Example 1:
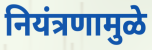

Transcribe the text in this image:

नियंत्रणामुळे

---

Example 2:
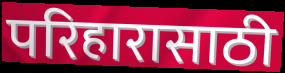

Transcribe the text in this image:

परिहारासाठी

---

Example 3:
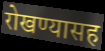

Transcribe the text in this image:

रोखण्यासह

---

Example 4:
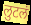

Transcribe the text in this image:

लुटलं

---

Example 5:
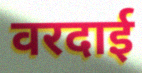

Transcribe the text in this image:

वरदाई